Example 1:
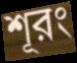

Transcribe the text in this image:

শূরং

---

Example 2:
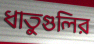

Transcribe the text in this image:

ধাতুগুলির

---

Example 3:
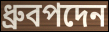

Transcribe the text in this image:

ধ্রুবপদেন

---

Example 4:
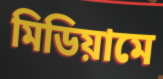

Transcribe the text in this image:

মিডিয়ামে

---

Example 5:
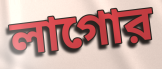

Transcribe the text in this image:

লাগোর